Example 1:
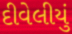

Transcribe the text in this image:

દીવેલીયું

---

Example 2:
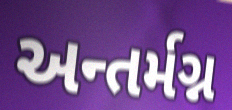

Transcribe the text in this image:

અન્તર્મગ્ન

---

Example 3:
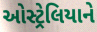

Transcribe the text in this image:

ઓસ્ટ્રેલિયાને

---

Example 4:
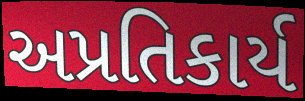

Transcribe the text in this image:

અપ્રતિકાર્ય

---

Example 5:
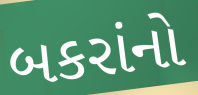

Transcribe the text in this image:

બકરાંનો